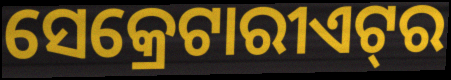
ସେକ୍ରେଟାରୀଏଟ୍‍ର